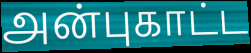
அன்புகாட்ட